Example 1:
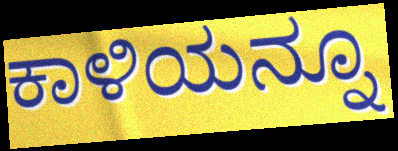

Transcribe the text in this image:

ಕಾಳಿಯನ್ನೂ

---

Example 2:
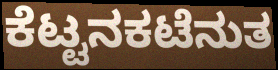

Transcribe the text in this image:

ಕೆಟ್ಟನಕಟೆನುತ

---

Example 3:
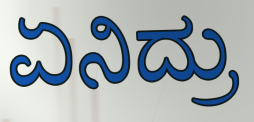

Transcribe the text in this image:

ಏನಿದ್ರು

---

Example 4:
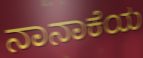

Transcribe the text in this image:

ನಾನಾಕೆಯ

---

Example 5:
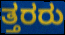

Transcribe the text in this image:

ತ್ತರರು